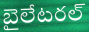
బైలేటరల్